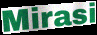
Mirasi